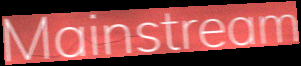
Mainstream